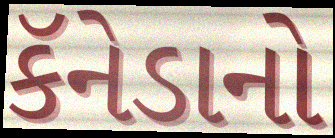
કૅનેડાનો